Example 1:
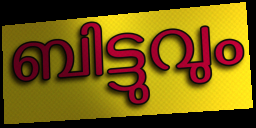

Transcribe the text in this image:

ബിട്ടുവും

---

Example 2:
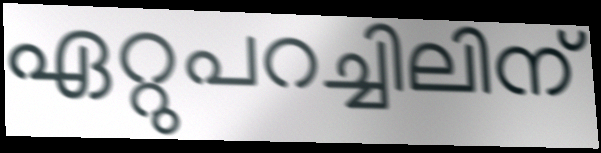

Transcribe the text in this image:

ഏറ്റുപറച്ചിലിന്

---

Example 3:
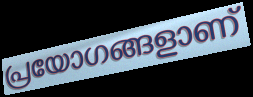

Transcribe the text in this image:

പ്രയോഗങ്ങളാണ്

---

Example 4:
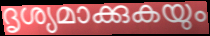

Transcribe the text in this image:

ദൃശ്യമാക്കുകയും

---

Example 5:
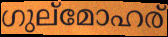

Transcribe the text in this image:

ഗുല്മോഹര്